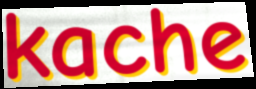
kache